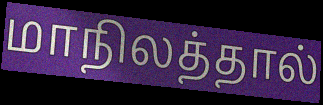
மாநிலத்தால்